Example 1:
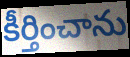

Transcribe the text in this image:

కీర్తించాను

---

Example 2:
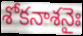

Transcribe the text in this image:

శోకనాశనైః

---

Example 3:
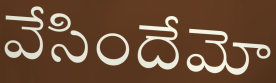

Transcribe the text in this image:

వేసిందేమో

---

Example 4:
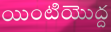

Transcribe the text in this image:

యింటియొద్ద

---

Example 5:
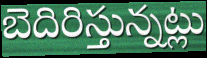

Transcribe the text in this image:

బెదిరిస్తున్నట్లు